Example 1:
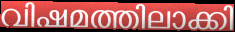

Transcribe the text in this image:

വിഷമത്തിലാക്കി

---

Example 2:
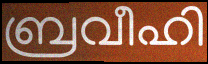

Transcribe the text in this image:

ബ്രവീഹി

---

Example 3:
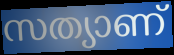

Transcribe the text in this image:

സത്യാണ്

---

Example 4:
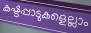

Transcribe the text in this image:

കഷ്ടപ്പാടുകളെല്ലാം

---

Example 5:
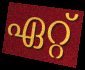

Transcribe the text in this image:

ഏറ്റ്